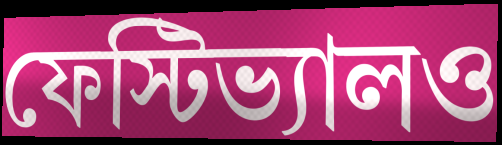
ফেস্টিভ্যালও